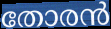
തോരൻ